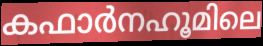
കഫാർനഹൂമിലെ